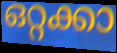
ഒറ്റക്കാ